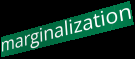
marginalization